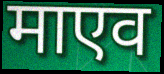
माएव